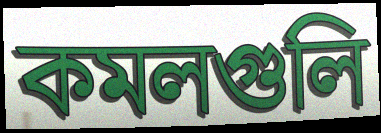
কমলগুলি